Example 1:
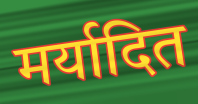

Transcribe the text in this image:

मर्यादित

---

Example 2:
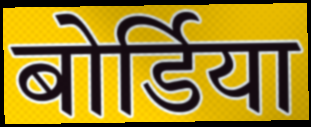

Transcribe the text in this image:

बोर्डिया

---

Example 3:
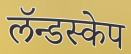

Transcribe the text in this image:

लॅन्डस्केप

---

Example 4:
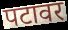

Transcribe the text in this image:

पटावर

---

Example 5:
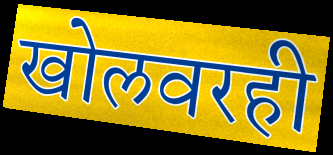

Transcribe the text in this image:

खोलवरही